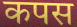
कपस